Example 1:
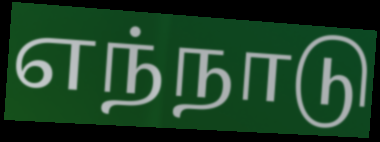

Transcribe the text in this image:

எந்நாடு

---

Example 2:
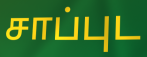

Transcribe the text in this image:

சாப்புட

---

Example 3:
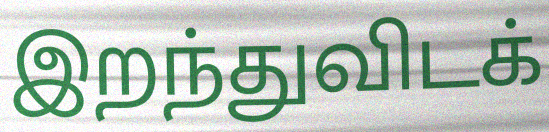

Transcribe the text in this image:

இறந்துவிடக்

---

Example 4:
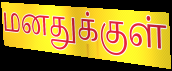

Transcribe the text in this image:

மனதுக்குள்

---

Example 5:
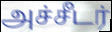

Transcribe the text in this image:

அச்சீடர்